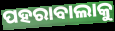
ପହରାବାଲାକୁ